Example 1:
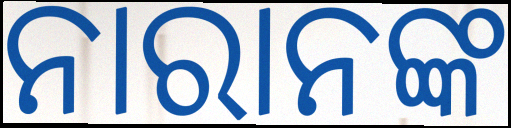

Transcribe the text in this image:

ନାରାନଙ୍କ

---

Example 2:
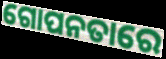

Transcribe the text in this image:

ଗୋପନତାରେ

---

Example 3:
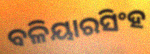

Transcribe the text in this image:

ବଳିୟାରସିଂହ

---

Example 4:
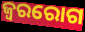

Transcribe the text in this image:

ଜ୍ୱରରୋଗ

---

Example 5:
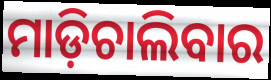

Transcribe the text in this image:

ମାଡ଼ିଚାଲିବାର